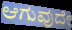
ಆಗುವುದೇ